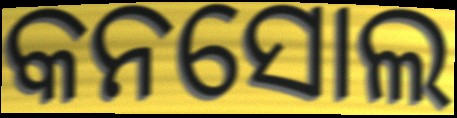
କନସୋଲ